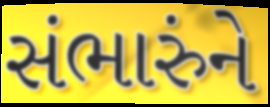
સંભારુંને